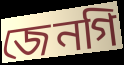
জেনগি